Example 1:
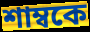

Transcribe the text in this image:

শাম্বকে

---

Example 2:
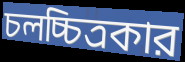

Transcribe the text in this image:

চলচ্চিত্রকার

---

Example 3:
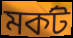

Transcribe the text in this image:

মর্কট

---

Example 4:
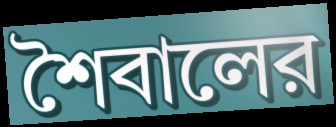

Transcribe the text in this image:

শৈবালের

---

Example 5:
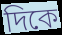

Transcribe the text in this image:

দিকে